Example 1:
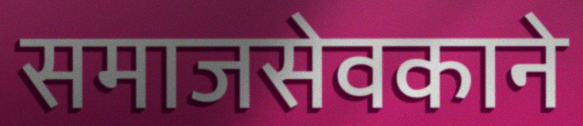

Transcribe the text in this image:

समाजसेवकाने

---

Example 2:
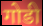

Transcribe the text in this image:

गोडी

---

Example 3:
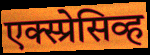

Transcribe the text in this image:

एक्स्प्रेसिव्ह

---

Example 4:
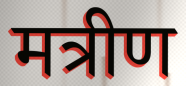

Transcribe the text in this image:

मत्रीण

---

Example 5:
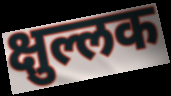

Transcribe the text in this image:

क्षुल्लक